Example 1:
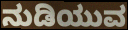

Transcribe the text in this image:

ನುಡಿಯುವ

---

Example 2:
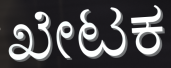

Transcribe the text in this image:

ಖೇಟಕ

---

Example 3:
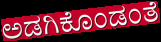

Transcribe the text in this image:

ಅಡಗಿಕೊಂಡಂತೆ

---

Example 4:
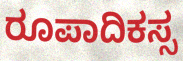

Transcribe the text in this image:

ರೂಪಾದಿಕಸ್ಸ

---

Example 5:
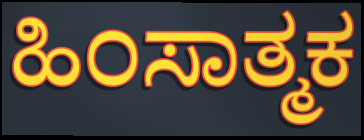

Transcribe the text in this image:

ಹಿಂಸಾತ್ಮಕ